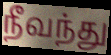
நீவந்து